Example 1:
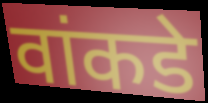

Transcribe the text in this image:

वांकडे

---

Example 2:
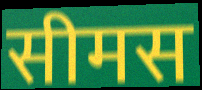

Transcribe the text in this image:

सीमस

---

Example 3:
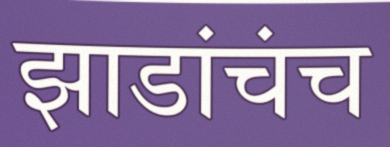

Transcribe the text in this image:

झाडांचंच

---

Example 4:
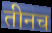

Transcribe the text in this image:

तीनच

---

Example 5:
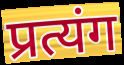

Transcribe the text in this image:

प्रत्यंग